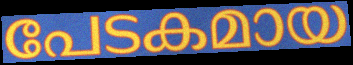
പേടകമായ